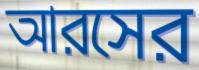
আরসের